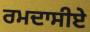
ਰਮਦਾਸੀਏ